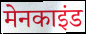
मेनकाइंड